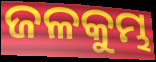
ଜଳକୁମ୍ଭ